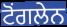
ਟੋਂਗਲੇਨ